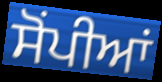
ਸੋਂਪੀਆਂ